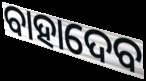
ବାହାଦେବ